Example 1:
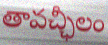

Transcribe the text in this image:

తావచ్ఛీలం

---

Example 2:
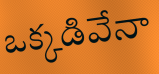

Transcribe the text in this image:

ఒక్కడివేనా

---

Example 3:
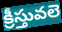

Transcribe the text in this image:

క్రీస్తువలె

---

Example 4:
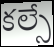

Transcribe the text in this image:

కల్సే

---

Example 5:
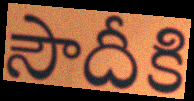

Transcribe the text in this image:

సౌదీకి